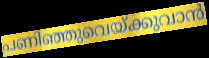
പണിഞ്ഞുവെയ്ക്കുവാൻ